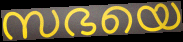
സഭയെ